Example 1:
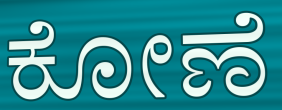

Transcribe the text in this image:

ಕೋಣೆ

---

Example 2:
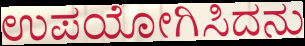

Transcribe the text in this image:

ಉಪಯೋಗಿಸಿದನು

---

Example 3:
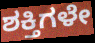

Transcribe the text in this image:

ಶಕ್ತಿಗಳೇ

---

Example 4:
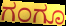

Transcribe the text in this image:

ಗಂಗೂ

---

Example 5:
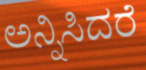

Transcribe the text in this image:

ಅನ್ನಿಸಿದರೆ